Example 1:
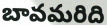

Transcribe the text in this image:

బావమరిది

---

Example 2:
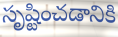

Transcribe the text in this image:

సృష్టించడానికి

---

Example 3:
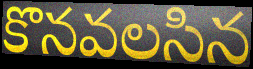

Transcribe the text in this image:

కొనవలసిన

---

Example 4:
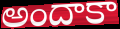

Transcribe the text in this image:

అందాకా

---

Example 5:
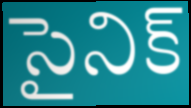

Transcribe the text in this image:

సైనిక్